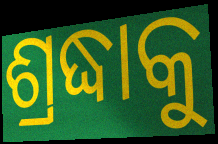
ଶ୍ରଦ୍ଧାକୁ